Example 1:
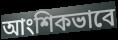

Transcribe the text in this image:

আংশিকভাবে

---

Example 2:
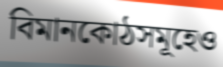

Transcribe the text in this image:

বিমানকোঠসমূহেও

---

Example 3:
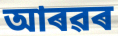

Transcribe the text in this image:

আৰৱৰ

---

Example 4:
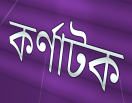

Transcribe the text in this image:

কৰ্ণাটক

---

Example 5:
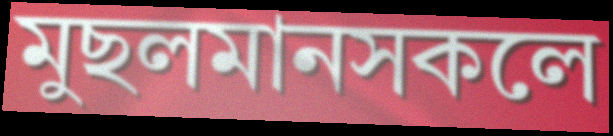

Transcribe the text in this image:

মুছলমানসকলে